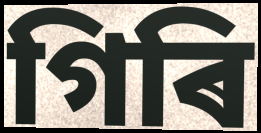
গিৰি